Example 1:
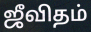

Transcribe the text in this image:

ஜீவிதம்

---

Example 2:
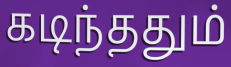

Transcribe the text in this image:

கடிந்ததும்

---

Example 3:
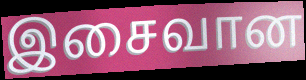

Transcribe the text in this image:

இசைவான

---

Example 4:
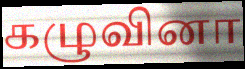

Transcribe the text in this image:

கழுவினா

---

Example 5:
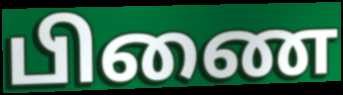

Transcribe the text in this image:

பிணை